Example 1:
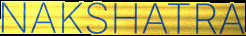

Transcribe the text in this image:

NAKSHATRA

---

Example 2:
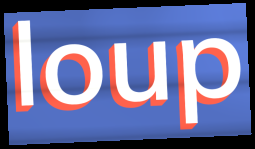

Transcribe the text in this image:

loup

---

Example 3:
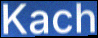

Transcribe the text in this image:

Kach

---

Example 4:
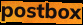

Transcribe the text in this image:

postbox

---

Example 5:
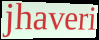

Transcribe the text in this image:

jhaveri